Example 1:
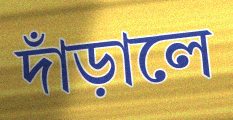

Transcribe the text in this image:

দাঁড়ালে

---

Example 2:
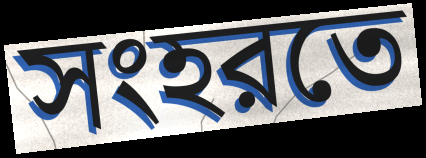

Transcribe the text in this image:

সংহরতে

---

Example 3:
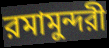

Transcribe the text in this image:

রমামুন্দরী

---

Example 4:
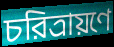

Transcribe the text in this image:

চরিত্রায়ণে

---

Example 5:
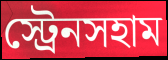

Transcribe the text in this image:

স্ট্রেনসহাম